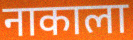
नाकाला